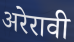
अरेरावी